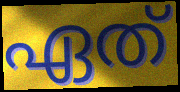
ഏത്